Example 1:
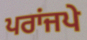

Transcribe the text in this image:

ਪਰਾਂਜਪੇ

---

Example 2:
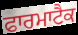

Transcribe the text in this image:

ਫਾਰਮਾਟੈਕ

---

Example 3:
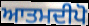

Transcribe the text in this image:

ਆਤਮਦੀਪੋ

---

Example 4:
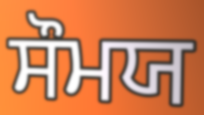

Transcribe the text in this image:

ਸੌਮਯ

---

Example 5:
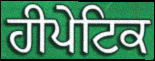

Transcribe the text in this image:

ਹੀਪੇਟਿਕ